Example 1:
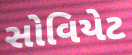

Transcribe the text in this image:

સોવિયેટ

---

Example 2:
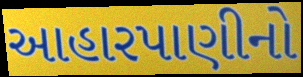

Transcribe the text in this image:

આહારપાણીનો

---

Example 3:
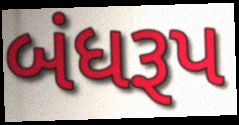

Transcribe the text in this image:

બંધરૂપ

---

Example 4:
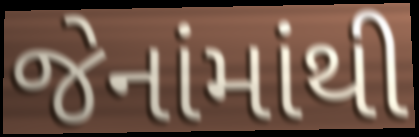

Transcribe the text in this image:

જેનાંમાંથી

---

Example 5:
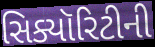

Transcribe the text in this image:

સિક્યૉરિટીની